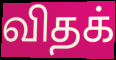
விதக்